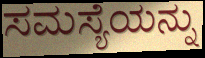
ಸಮಸ್ಯೆಯನ್ನು